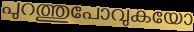
പുറത്തുപോവുകയോ